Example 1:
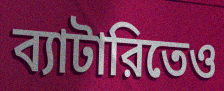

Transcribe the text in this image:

ব্যাটারিতেও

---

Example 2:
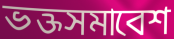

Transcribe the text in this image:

ভক্তসমাবেশ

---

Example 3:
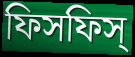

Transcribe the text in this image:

ফিসফিস্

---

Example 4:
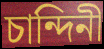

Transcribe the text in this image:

চান্দিনী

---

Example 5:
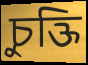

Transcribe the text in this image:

চুক্তি